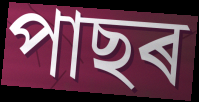
পাছৰ